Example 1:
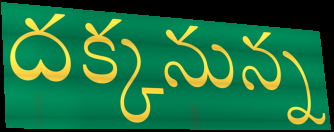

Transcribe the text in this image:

దక్కనున్న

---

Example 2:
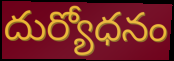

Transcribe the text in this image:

దుర్యోధనం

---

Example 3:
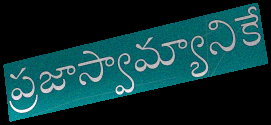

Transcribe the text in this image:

ప్రజాస్వామ్యానికే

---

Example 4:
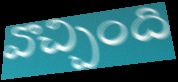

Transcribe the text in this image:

వొచ్చింది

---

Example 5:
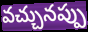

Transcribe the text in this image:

వచ్చునప్పు